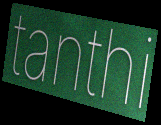
tanthi